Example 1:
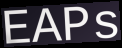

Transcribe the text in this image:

EAPs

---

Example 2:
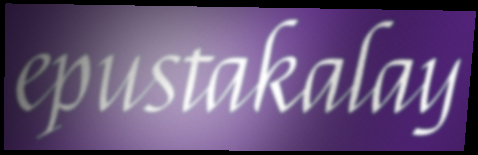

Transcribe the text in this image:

epustakalay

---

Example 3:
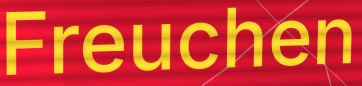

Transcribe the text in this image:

Freuchen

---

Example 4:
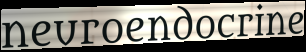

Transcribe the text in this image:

neuroendocrine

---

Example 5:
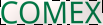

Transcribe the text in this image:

COMEX